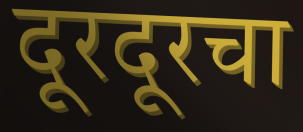
दूरदूरचा